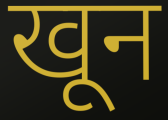
खून